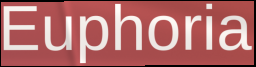
Euphoria